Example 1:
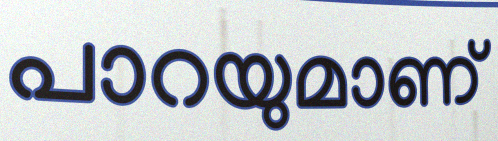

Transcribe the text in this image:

പാറയുമാണ്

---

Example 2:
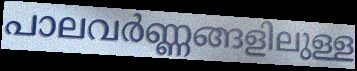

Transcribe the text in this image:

പാലവർണ്ണങ്ങളിലുള്ള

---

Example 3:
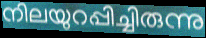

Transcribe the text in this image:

നിലയുറപ്പിച്ചിരുന്നു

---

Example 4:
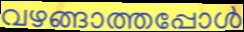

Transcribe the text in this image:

വഴങ്ങാത്തപ്പോൾ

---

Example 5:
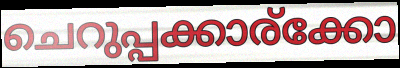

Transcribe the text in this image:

ചെറുപ്പക്കാര്ക്കോ